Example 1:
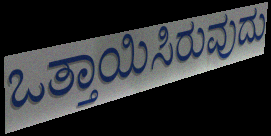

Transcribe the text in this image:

ಒತ್ತಾಯಿಸಿರುವುದು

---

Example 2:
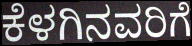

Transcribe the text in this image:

ಕೆಳಗಿನವರಿಗೆ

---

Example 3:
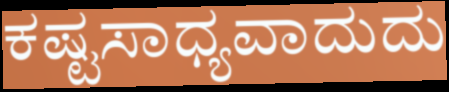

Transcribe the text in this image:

ಕಷ್ಟಸಾಧ್ಯವಾದುದು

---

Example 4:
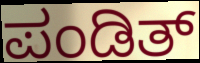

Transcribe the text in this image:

ಪಂಡಿತ್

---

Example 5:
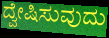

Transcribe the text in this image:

ದ್ವೇಷಿಸುವುದು